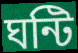
ঘন্টি